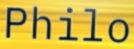
Philo